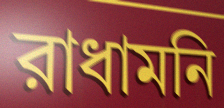
রাধামনি